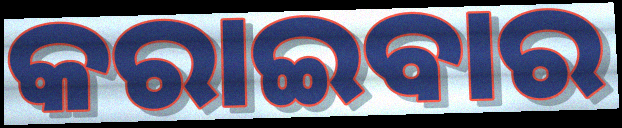
କରାଇବାର